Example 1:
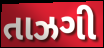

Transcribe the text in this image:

તાઝગી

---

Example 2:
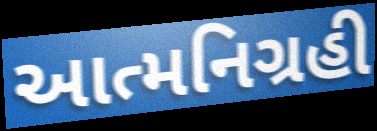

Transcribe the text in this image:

આત્મનિગ્રહી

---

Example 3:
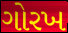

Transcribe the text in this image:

ગોરખ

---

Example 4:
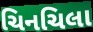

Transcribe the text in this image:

ચિનચિલા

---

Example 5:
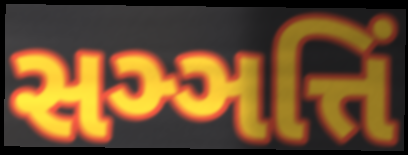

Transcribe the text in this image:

સઞ્ઞત્તિં